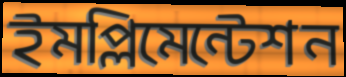
ইমপ্লিমেন্টেশন